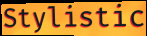
Stylistic